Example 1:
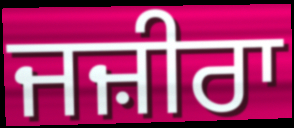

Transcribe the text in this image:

ਜਜ਼ੀਰਾ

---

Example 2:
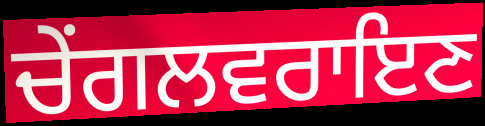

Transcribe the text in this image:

ਚੇਂਗਲਵਰਾਇਣ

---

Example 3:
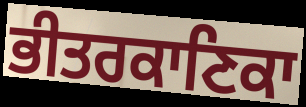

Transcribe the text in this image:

ਭੀਤਰਕਾਣਿਕਾ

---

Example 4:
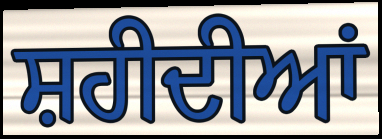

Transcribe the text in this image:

ਸ਼ਹੀਦੀਆਂ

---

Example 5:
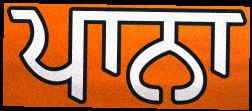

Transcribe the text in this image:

ਪਾਨਾ